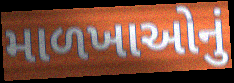
માળખાઓનું